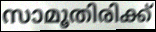
സാമൂതിരിക്ക്